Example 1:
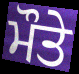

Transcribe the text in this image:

ਮੌਤੇ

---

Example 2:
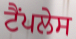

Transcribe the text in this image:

ਟੈਂਪਲੇਸ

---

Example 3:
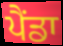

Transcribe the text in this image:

ਪੈਂਡਾ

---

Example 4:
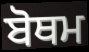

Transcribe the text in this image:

ਬੋਥਮ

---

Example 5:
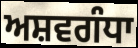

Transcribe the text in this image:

ਅਸ਼ਵਗੰਧਾ